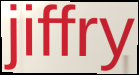
jiffry